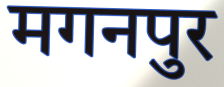
मगनपुर